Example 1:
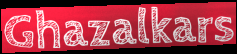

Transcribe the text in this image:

Ghazalkars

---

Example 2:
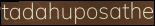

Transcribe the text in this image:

tadahuposathe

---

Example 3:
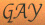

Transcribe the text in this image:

GAY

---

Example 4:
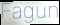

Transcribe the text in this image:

Fagun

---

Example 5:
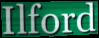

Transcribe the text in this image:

Ilford